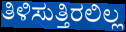
ತಿಳಿಸುತ್ತಿರಲಿಲ್ಲ